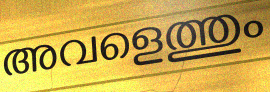
അവളെത്തും